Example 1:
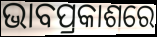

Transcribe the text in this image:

ଭାବପ୍ରକାଶରେ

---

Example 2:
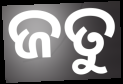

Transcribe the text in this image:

ଜତୁ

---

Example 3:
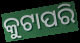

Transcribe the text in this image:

କୁଟାପରି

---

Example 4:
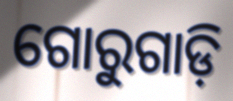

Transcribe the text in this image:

ଗୋରୁଗାଡ଼ି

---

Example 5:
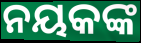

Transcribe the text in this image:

ନୟକଙ୍କ